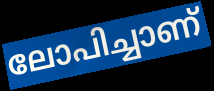
ലോപിച്ചാണ്